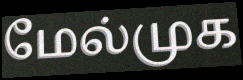
மேல்முக